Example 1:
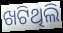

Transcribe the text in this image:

ଖଟିଥିଲି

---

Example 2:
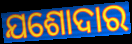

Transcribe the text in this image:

ଯଶୋଦାର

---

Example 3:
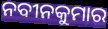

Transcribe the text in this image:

ନବୀନକୁମାର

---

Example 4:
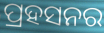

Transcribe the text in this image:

ପ୍ରହସନର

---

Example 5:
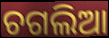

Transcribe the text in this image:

ଚଗଲିଆ